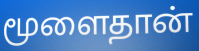
மூளைதான்